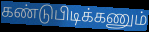
கண்டுபிடிக்கணும்